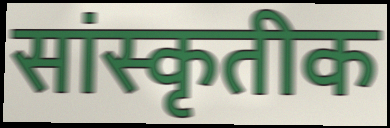
सांस्कृतीक